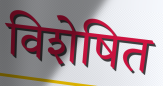
विशेषित